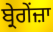
ਬ੍ਰੇਗੇਂਜ਼ਾ